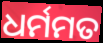
ଧର୍ମମତ